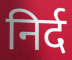
निर्द